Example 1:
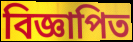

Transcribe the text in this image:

বিজ্ঞাপিত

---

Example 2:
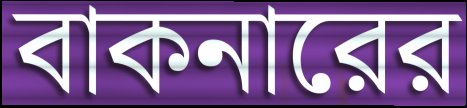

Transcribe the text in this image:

বাকনারের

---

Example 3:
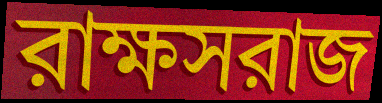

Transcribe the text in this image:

রাক্ষসরাজ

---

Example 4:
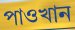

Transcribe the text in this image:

পাওখান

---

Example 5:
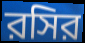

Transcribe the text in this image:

রসির